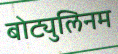
बोट्युलिनम